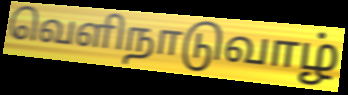
வெளிநாடுவாழ்